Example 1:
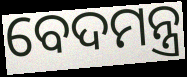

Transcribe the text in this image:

ବେଦମନ୍ତ୍ର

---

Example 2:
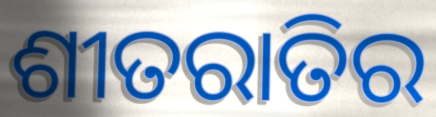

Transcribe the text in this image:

ଶୀତରାତିର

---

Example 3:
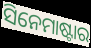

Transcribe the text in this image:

ସିନେମାଷ୍ଟାର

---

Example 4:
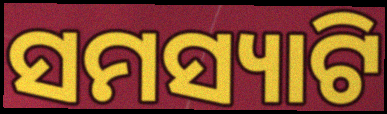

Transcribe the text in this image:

ସମସ୍ୟାଟି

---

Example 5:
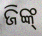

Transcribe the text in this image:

ଜିଙ୍କ୍